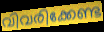
വിവരിക്കേണ്ട